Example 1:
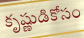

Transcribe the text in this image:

కృష్ణుడికోసం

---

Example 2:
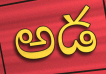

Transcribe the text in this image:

అడ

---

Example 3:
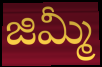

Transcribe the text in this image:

జిమ్మీ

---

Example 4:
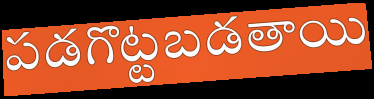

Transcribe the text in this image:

పడగొట్టబడతాయి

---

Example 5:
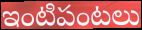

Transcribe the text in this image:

ఇంటిపంటలు